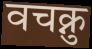
वचक्नु